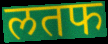
लतफ